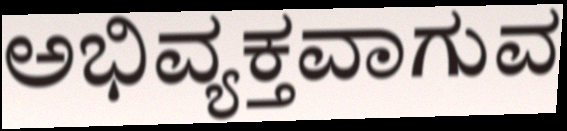
ಅಭಿವ್ಯಕ್ತವಾಗುವ